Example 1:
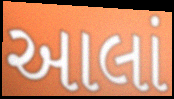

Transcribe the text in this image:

આલાં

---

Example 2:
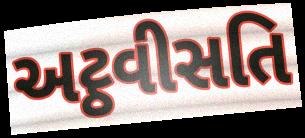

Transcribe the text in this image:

અટ્ઠવીસતિ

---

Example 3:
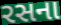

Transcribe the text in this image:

રસના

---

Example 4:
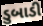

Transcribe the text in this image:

ડુબાડી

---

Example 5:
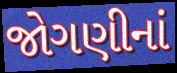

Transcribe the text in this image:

જોગણીનાં